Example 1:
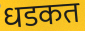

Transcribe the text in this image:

धडकत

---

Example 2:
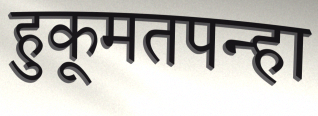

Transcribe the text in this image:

हुकूमतपन्हा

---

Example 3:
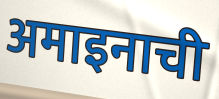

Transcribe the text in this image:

अमाइनाची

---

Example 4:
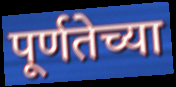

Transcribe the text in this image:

पूर्णतेच्या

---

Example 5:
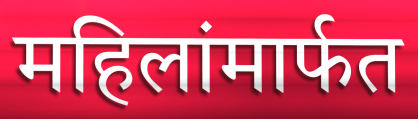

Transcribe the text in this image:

महिलांमार्फत